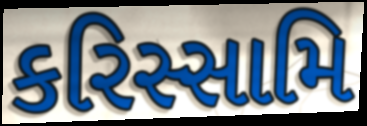
કરિસ્સામિ